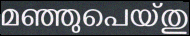
മഞ്ഞുപെയ്തു